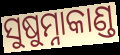
ସୁଷୁମ୍ନାକାଣ୍ଡ